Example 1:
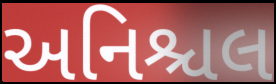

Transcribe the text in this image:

અનિશ્ચલ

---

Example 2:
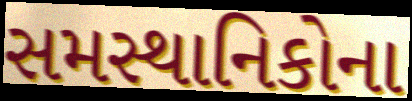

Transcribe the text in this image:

સમસ્થાનિકોના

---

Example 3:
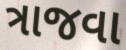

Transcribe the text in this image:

ત્રાજવા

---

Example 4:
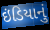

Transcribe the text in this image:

ઇંડિયાનું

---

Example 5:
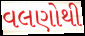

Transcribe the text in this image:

વલણોથી